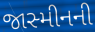
જાસ્મીનની